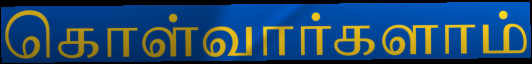
கொள்வார்களாம்